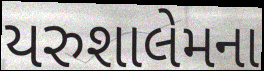
યરુશાલેમના